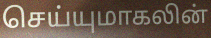
செய்யுமாகலின்